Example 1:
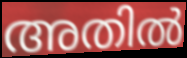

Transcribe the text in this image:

അതിൽ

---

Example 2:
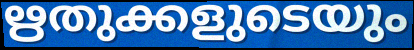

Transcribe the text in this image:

ഋതുക്കളുടെയും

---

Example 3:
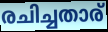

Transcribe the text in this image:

രചിച്ചതാര്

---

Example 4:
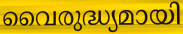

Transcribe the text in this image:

വൈരുദ്ധ്യമായി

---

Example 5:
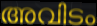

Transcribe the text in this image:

അവിടം